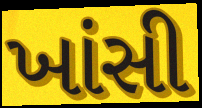
ખાંસી